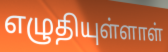
எழுதியுள்ளாள்